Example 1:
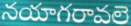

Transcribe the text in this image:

నయాగరావలె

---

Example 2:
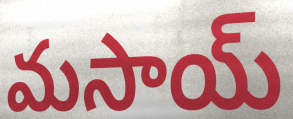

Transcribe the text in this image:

మసాయ్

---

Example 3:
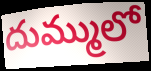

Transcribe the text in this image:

దుమ్ములో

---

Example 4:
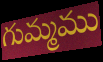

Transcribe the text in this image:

గుమ్మము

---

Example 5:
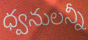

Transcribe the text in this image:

ధ్వనులన్నీ